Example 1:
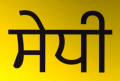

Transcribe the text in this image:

ਸੇਧੀ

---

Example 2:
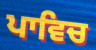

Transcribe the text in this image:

ਪਾਵਿਚ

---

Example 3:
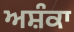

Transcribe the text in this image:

ਅਸ਼ੰਕਾ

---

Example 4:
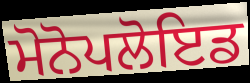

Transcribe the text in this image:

ਮੋਨੋਪਲੋਇਡ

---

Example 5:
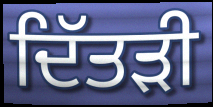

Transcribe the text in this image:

ਦਿੱਤੜੀ